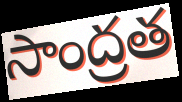
సాంద్రత